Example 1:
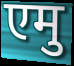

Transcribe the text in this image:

एमु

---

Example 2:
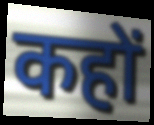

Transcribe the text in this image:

कहों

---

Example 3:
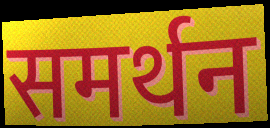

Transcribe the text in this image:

समर्थन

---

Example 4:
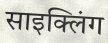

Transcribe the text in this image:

साइक्लिंग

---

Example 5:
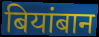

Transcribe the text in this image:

बियांबान